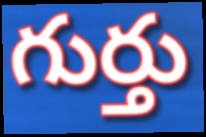
గుర్తు